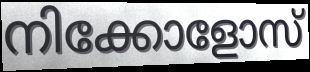
നിക്കോളോസ്